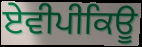
ਏਵੀਪੀਕਿਊ